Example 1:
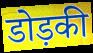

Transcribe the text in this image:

डोड़की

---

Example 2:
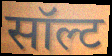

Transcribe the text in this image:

सॉल्‍ट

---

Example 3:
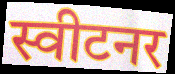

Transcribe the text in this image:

स्वीटनर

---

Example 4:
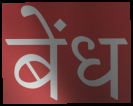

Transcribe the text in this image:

बेंध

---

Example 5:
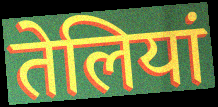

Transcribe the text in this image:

तेलियां